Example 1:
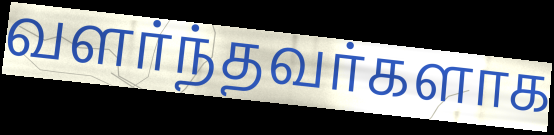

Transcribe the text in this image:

வளர்ந்தவர்களாக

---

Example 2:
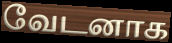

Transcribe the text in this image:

வேடனாக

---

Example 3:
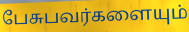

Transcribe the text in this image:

பேசுபவர்களையும்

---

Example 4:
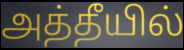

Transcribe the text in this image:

அத்தீயில்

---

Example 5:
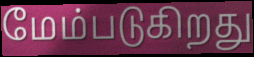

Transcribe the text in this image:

மேம்படுகிறது